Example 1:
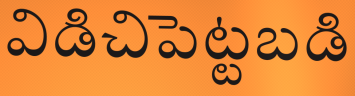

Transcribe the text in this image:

విడిచిపెట్టబడి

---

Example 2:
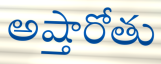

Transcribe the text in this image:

అష్తారోతు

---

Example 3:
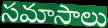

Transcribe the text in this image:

సమాసాలు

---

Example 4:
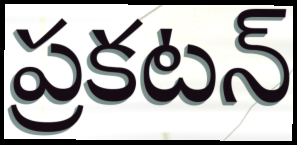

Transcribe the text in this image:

ప్రకటన్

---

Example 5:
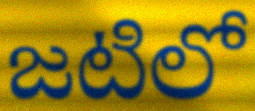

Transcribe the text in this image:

జటిలో